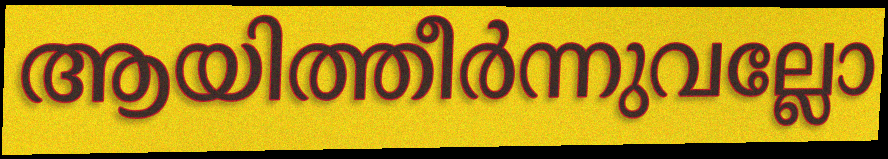
ആയിത്തീർന്നുവല്ലോ